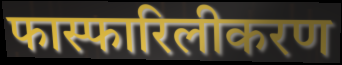
फास्फारिलीकरण